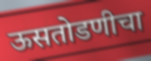
ऊसतोडणीचा